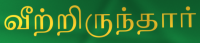
வீற்றிருந்தார்